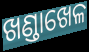
ଖଣ୍ଡାଖେଳ